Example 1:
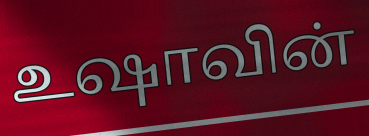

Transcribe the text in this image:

உஷாவின்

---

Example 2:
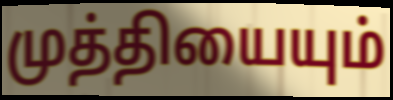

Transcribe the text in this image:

முத்தியையும்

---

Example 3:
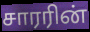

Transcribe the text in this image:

சாரரின்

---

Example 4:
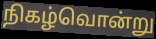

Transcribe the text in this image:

நிகழ்வொன்று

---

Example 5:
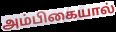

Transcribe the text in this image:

அம்பிகையால்